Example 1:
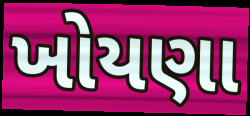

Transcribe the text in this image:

ખોયણા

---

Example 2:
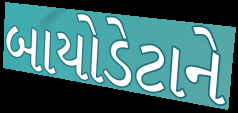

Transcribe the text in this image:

બાયોડેટાને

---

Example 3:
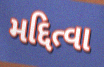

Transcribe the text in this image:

મદ્દિત્વા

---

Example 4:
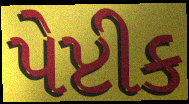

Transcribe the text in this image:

પેપ્ટીક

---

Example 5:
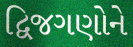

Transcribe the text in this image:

દ્વિજગણોને